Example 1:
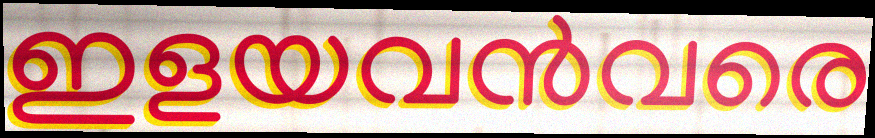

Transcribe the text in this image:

ഇളയവൻവരെ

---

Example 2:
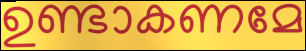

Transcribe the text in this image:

ഉണ്ടാകണമേ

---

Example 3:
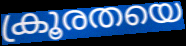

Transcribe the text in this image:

ക്രൂരതയെ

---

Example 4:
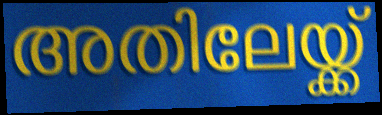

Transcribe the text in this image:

അതിലേയ്ക്ക്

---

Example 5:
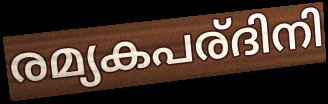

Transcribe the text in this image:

രമ്യകപര്ദിനി